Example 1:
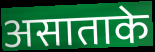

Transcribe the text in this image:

असाताके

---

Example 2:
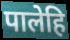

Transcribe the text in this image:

पालेहि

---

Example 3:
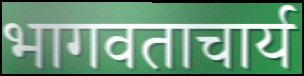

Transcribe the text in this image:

भागवताचार्य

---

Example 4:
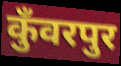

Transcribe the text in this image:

कुँवरपुर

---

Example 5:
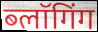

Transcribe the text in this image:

ब्‍लॉगिंग